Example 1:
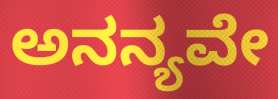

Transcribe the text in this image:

ಅನನ್ಯವೇ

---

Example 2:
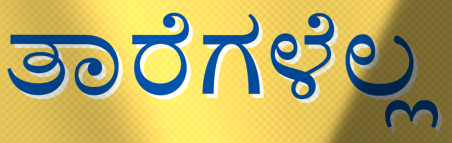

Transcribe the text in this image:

ತಾರೆಗಳೆಲ್ಲ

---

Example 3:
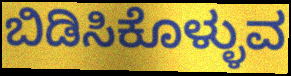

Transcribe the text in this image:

ಬಿಡಿಸಿಕೊಳ್ಳುವ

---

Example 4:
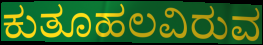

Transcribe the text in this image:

ಕುತೂಹಲವಿರುವ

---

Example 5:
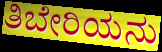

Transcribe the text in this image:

ತಿಬೇರಿಯನು